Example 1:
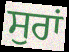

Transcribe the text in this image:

ਸੁਰਾਂ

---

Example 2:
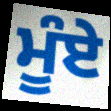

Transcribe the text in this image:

ਮੂੰਏ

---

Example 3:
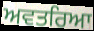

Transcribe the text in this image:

ਅਵਤਰਿਆ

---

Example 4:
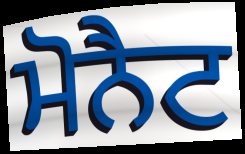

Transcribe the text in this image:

ਮੋਨੈਟ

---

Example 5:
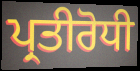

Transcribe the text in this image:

ਪ੍ਰਤੀਰੋਧੀ